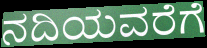
ನದಿಯವರೆಗೆ